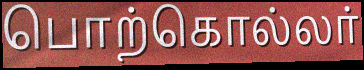
பொற்கொல்லர்